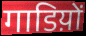
गाडिय़ों